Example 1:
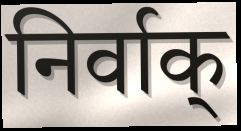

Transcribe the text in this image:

निर्वाक्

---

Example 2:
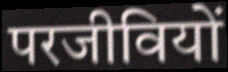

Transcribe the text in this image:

परजीवियों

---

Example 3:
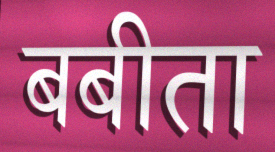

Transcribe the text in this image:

बबीता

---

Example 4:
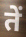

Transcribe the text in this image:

तें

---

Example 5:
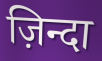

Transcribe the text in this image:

ज़िन्दा